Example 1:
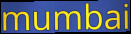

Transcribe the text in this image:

mumbai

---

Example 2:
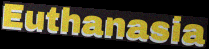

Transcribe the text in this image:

Euthanasia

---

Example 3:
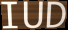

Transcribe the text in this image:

IUD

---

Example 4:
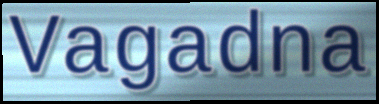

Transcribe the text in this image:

Vagadna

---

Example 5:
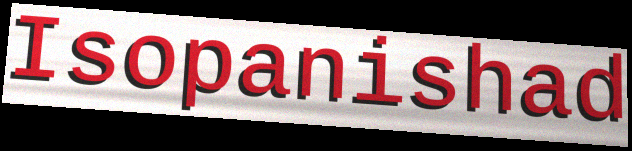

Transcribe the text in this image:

Isopanishad